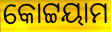
କୋଟ୍ଟୟାମ